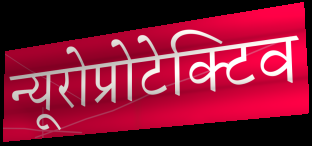
न्यूरोप्रोटेक्टिव